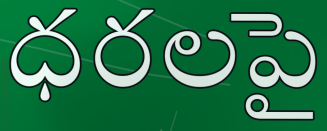
ధరలపై